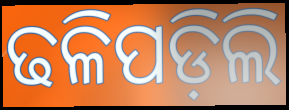
ଢଳିପଡ଼ିଲି